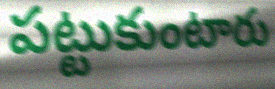
పట్టుకుంటారు